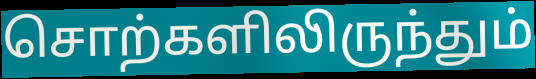
சொற்களிலிருந்தும்